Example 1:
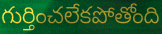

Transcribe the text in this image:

గుర్తించలేకపోతోంది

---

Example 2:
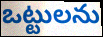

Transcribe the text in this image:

ఒట్టులను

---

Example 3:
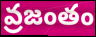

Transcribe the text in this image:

వ్రజంతం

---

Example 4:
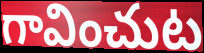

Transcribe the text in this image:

గావించుట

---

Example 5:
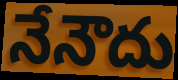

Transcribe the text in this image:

నేనౌదు